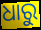
ଧାରୁ